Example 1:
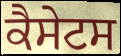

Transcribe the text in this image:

ਕੈਸੇਟਸ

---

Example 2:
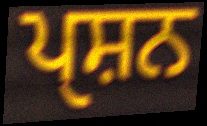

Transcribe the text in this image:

ਪੑਸ਼ਨ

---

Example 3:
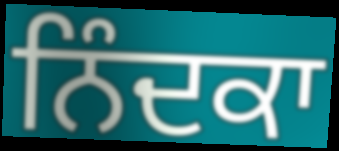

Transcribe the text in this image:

ਨਿੰਦਕਾ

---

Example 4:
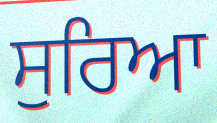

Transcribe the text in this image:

ਸੁਰਿਆ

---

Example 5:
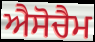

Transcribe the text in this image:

ਐਸੋਚੈਮ